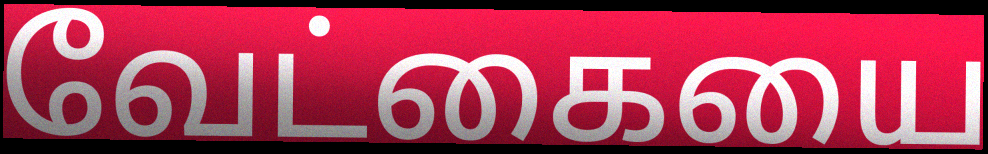
வேட்கையை